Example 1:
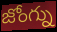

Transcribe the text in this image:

జోంగ్ను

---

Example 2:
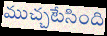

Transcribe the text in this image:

ముచ్చటేసింది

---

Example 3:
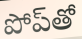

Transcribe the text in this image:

పోప్‌తో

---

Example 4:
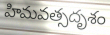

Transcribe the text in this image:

హిమవత్సదృశం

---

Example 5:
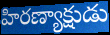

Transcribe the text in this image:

హిరణ్యాక్షుడు